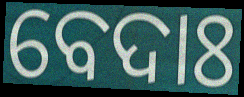
ବେଦାଃ